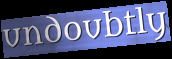
undoubtly